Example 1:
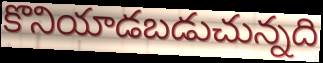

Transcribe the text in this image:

కొనియాడబడుచున్నది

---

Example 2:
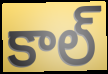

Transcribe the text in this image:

కాల్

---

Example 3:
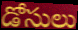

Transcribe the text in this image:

డోసులు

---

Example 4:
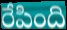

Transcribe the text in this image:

రేపింది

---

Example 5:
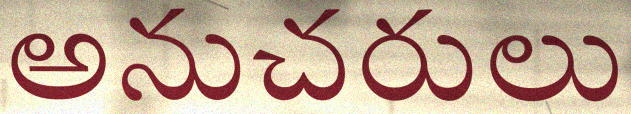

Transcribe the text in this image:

అనుచరులు